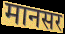
मानसर